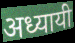
अध्यायी